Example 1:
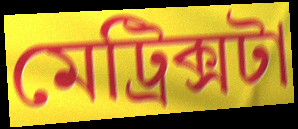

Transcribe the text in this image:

মেট্রিক্সটা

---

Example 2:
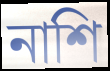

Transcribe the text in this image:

নাশি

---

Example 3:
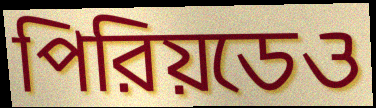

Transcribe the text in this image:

পিরিয়ডেও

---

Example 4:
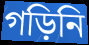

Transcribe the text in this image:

গড়িনি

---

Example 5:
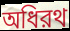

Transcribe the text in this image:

অধিরথ